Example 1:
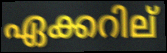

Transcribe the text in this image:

ഏക്കറില്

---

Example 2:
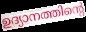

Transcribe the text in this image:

ഉദ്യാനത്തിന്റെ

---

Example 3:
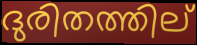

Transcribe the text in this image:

ദുരിതത്തില്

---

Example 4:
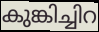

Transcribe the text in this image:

കുങ്കിച്ചിറ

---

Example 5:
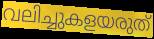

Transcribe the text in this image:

വലിച്ചുകളയരുത്